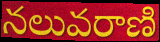
నలువరాణి